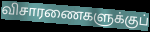
விசாரணைகளுக்குப்